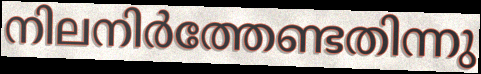
നിലനിർത്തേണ്ടതിന്നു